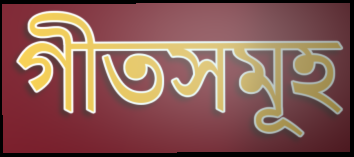
গীতসমূহ